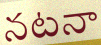
నటనా